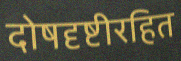
दोषदृष्टीरहित